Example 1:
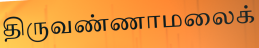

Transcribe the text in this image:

திருவண்ணாமலைக்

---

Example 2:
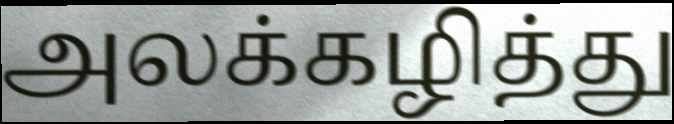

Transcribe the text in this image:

அலக்கழித்து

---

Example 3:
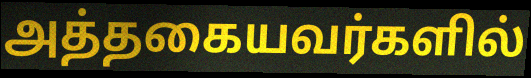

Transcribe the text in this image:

அத்தகையவர்களில்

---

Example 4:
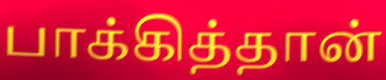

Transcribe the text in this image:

பாக்கித்தான்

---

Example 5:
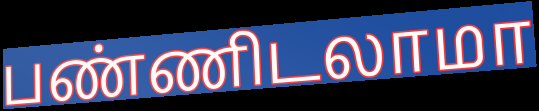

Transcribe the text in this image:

பண்ணிடலாமா